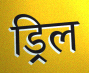
ड्रिल